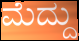
ಮೆದ್ದು